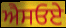
ਐਸਓਏ